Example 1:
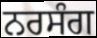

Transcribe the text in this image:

ਨਰਸੰਗ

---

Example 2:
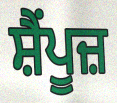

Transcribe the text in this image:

ਸ਼ੈਂਪੂਜ਼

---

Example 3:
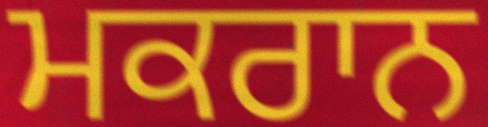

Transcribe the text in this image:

ਮਕਰਾਨ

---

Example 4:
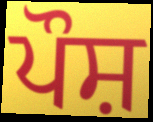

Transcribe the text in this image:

ਪੌਸ਼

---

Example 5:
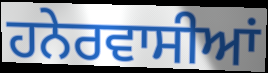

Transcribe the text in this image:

ਹਨੇਰਵਾਸੀਆਂ